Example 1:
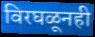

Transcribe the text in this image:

विरघळूनही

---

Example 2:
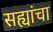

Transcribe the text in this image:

सह्यांचा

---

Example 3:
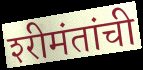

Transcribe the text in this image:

श्रीमंतांची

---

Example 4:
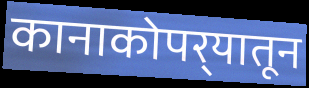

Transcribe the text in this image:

कानाकोपर्‍यातून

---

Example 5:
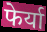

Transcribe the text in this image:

फेर्या